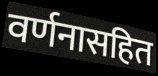
वर्णनासहित